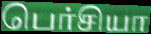
பெர்சியா